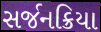
સર્જનક્રિયા